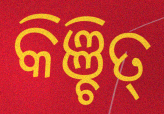
କିଞ୍ଚିତ୍